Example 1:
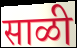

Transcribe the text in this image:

साळी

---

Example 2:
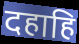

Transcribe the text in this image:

दहाहि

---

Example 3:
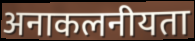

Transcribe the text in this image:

अनाकलनीयता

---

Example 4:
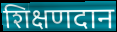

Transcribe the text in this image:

शिक्षणदान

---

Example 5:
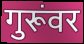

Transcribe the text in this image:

गुरूंवर